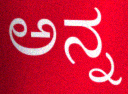
ಅನ್ನ